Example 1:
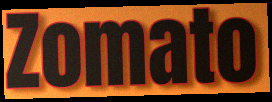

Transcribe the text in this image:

Zomato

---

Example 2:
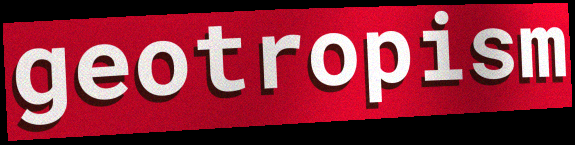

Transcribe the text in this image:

geotropism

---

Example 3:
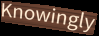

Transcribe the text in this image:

Knowingly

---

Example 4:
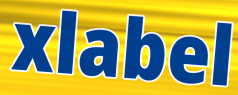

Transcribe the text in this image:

xlabel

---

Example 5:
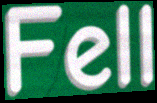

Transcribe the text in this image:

Fell